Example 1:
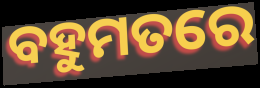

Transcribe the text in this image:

ବହୁମତରେ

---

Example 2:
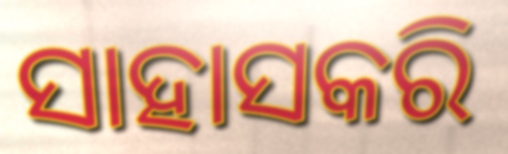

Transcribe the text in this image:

ସାହାସକରି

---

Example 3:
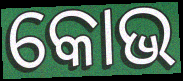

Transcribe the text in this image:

କୋଭ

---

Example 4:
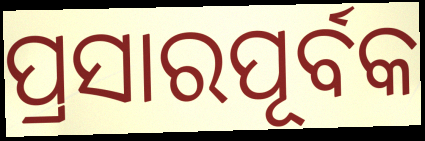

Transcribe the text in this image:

ପ୍ରସାରପୂର୍ବକ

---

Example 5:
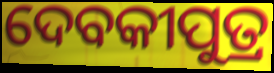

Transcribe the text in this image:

ଦେବକୀପୁତ୍ର